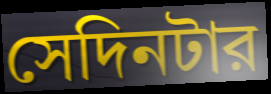
সেদিনটার